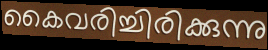
കൈവരിച്ചിരിക്കുന്നു